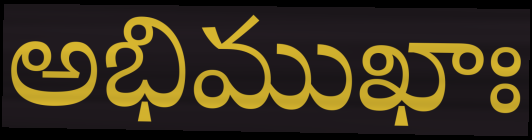
అభిముఖాః